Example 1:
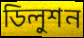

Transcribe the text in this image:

ডিলুশন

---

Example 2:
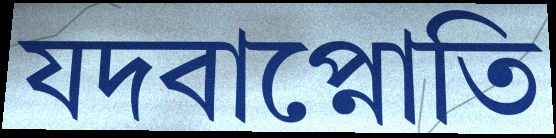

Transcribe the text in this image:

যদবাপ্নোতি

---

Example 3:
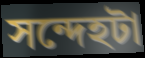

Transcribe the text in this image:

সন্দেহটা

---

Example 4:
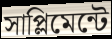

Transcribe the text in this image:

সাপ্লিমেন্টে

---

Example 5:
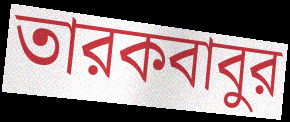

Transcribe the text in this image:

তারকবাবুর